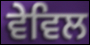
ਵੇਵਿਲ